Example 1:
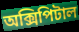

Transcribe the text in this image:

অক্সিপিটাল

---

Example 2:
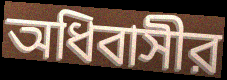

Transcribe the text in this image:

অধিবাসীর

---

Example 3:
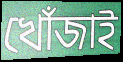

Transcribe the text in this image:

খোঁজাই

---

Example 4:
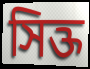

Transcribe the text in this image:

সিক্ত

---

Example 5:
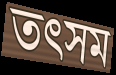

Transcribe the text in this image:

তৎসম